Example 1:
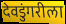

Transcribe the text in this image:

देवडुंगरीला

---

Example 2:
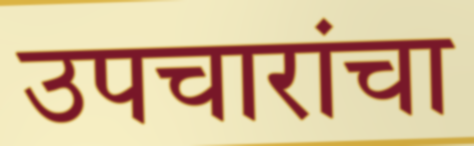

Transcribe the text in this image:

उपचारांचा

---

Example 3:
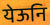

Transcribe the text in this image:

येऊनि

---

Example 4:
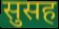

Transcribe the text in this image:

सुसह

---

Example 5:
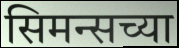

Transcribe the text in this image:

सिमन्सच्या